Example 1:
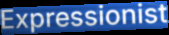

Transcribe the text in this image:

Expressionist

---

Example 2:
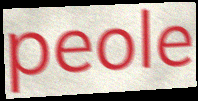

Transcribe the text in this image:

peole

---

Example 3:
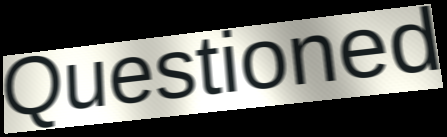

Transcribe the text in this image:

Questioned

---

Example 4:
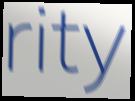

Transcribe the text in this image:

rity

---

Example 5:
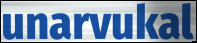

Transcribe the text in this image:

unarvukal